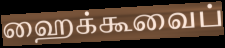
ஹைக்கூவைப்